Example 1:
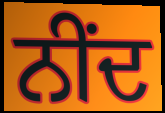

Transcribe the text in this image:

ਨੀਂਦ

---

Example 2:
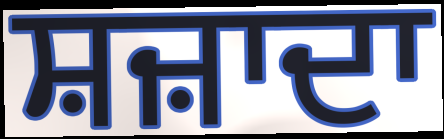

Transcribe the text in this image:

ਸ਼ਜ਼ਾਦਾ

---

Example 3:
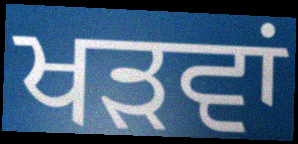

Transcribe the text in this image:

ਖੜਵਾਂ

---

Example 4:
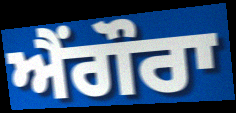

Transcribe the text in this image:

ਐਂਗੌਰਾ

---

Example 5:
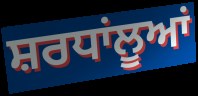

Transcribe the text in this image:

ਸ਼ਰਧਾਂਲੂਆਂ